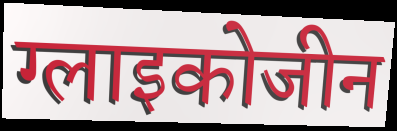
ग्लाइकोजीन